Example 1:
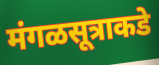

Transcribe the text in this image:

मंगळसूत्राकडे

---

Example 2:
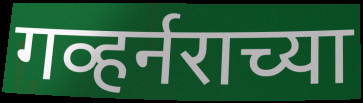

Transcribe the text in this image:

गव्हर्नराच्या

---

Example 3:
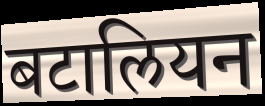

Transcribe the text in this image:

बटालियन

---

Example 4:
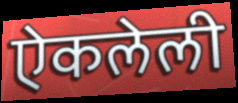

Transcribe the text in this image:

ऐकलेली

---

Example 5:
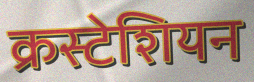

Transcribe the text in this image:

क्रस्टेशियन